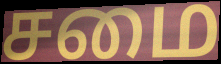
சமை